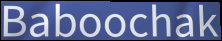
Baboochak